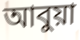
আবুয়া